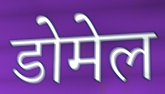
डोमेल